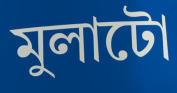
মুলাটো